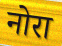
नोरा